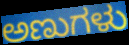
ಅಣುಗಳು